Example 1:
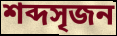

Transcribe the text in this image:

শব্দসৃজন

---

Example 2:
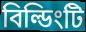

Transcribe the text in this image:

বিল্ডিংটি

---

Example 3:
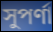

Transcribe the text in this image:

সুপর্ণা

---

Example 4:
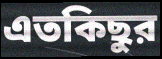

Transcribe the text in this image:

এতকিছুর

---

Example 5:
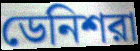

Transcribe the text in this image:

ডেনিশরা